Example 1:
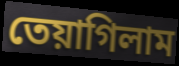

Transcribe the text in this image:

তেয়াগিলাম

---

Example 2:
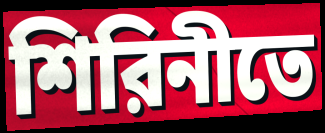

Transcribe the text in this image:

শিরিনীতে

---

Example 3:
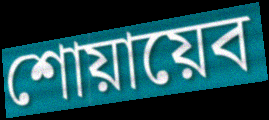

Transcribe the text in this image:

শোয়ায়েব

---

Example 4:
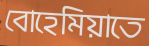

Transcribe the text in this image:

বোহেমিয়াতে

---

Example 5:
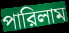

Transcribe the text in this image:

পারিলাম